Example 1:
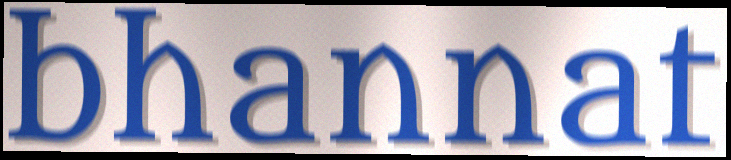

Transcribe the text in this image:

bhannat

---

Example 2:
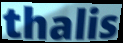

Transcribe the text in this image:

thalis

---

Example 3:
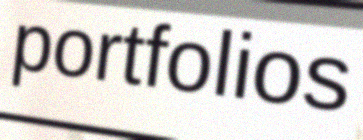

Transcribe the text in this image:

portfolios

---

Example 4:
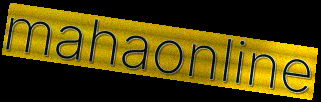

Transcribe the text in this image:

mahaonline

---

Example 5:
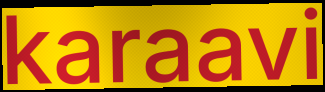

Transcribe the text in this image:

karaavi